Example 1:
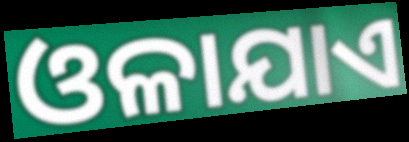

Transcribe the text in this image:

ଓଳାଯାଏ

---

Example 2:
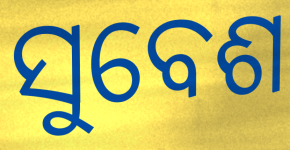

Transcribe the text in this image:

ସୁବେଶ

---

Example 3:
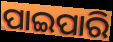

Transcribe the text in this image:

ପାଇପାରି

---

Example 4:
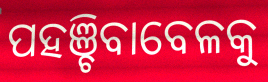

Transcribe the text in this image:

ପହଞ୍ଚିବାବେଳକୁ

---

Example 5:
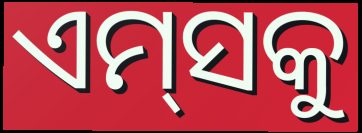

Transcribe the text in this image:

ଏମ୍‌ସକୁ